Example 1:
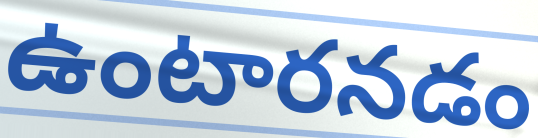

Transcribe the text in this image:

ఉంటారనడం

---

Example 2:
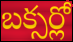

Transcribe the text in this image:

బక్సర్లో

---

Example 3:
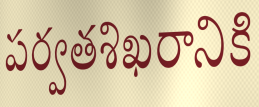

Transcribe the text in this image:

పర్వతశిఖరానికి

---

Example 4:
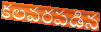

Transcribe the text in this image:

కలవరపడిన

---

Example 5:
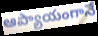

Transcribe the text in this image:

ఆప్యాయంగానే